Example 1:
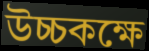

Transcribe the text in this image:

উচ্চকক্ষে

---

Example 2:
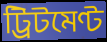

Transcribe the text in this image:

ট্রিটমেণ্ট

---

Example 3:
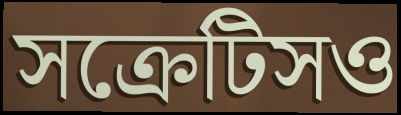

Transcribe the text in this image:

সক্রেটিসও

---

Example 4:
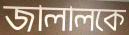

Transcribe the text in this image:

জালালকে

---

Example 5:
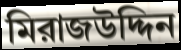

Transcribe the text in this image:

মিরাজউদ্দিন